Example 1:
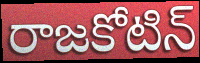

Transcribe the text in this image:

రాజకోటిన్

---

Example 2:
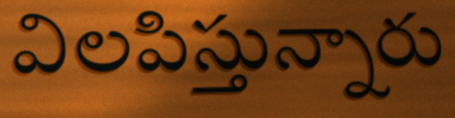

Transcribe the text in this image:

విలపిస్తున్నారు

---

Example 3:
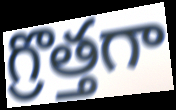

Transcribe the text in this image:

గ్రొత్తగా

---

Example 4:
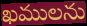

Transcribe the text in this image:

ఖములను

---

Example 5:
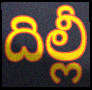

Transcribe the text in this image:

దిల్లీ